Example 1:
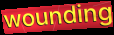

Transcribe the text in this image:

wounding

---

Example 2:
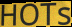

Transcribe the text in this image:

HOTs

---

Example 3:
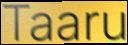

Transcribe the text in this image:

Taaru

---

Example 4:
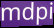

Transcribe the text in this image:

mdpi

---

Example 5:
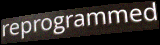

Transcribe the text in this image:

reprogrammed